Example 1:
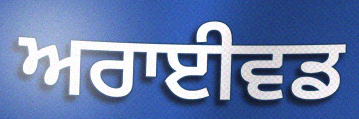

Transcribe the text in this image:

ਅਰਾਈਵਡ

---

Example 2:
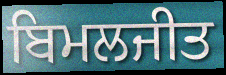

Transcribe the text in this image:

ਬਿਮਲਜੀਤ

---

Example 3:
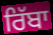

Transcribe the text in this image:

ਰਿੱਬਾ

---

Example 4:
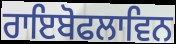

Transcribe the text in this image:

ਰਾਇਬੋਫਲਾਵਿਨ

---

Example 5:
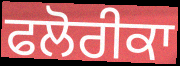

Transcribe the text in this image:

ਫਲੋਰੀਕਾ